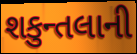
શકુન્તલાની